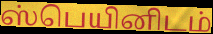
ஸ்பெயினிடம்